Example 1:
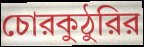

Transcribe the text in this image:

চোরকুঠুরির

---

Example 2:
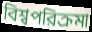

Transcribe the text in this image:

বিশ্বপরিক্রমা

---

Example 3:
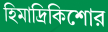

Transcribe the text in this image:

হিমাদ্রিকিশোর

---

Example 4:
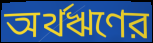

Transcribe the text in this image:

অর্থঋণের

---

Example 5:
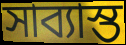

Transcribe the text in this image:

সাব্যাস্ত